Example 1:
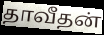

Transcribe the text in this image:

தாவீதன்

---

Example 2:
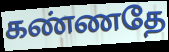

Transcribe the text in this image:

கண்ணதே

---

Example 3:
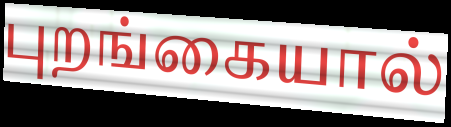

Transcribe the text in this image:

புறங்கையால்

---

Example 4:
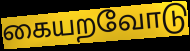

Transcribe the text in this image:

கையறவோடு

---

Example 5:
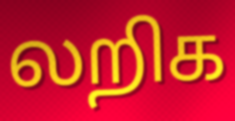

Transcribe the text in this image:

லறிக